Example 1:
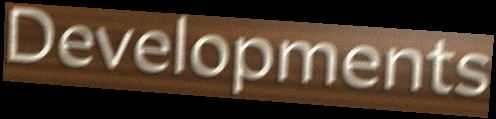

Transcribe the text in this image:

Developments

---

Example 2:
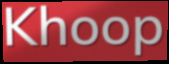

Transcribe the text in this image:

Khoop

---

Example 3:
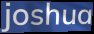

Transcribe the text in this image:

joshua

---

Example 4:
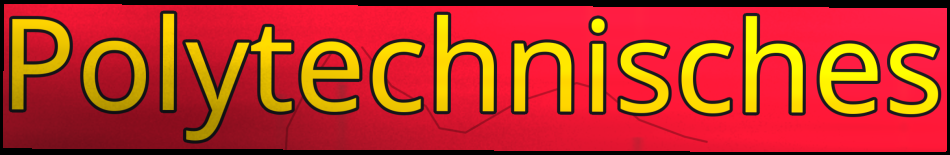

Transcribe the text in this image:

Polytechnisches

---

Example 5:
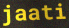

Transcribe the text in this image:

jaati